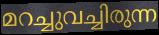
മറച്ചുവച്ചിരുന്ന